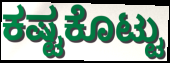
ಕಷ್ಟಕೊಟ್ಟು